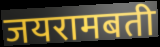
जयरामबती